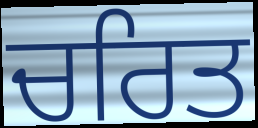
ਚਰਿਤ